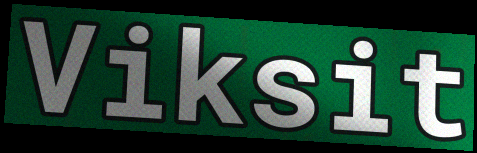
Viksit